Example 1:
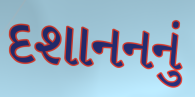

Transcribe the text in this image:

દશાનનનું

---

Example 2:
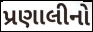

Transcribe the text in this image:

પ્રણાલીનો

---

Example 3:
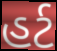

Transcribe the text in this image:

હર્ટ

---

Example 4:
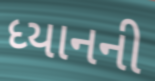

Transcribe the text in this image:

ધ્યાનની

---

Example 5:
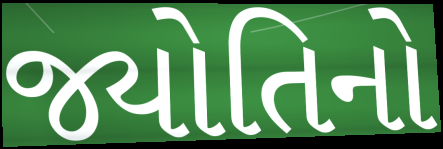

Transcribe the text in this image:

જ્યોતિનો